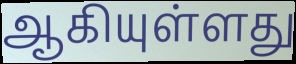
ஆகியுள்ளது